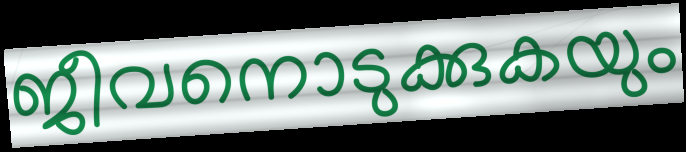
ജീവനൊടുക്കുകയും